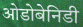
ओडोबेनिडी